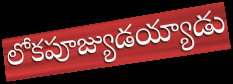
లోకపూజ్యుడయ్యాడు